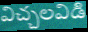
విచ్చలవిడి